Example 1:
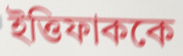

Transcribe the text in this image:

ইত্তিফাককে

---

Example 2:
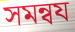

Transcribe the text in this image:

সমন্বয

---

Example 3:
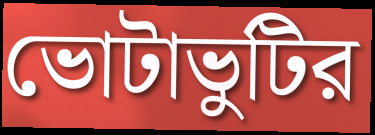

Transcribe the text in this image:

ভোটাভুটির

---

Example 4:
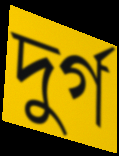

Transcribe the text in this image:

দুর্গ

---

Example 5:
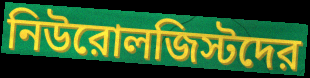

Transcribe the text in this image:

নিউরোলজিস্টদের